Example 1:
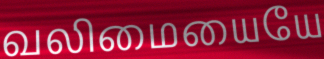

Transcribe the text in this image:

வலிமையையே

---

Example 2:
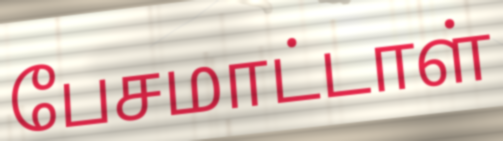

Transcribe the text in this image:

பேசமாட்டாள்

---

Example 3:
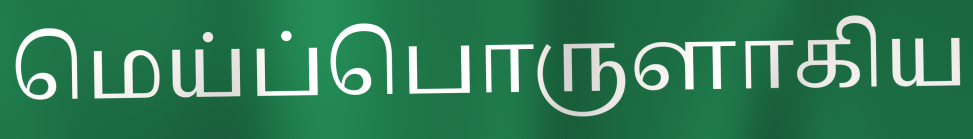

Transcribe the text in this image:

மெய்ப்பொருளாகிய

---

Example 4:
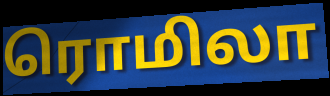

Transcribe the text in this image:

ரொமிலா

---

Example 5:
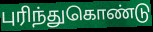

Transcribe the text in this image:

புரிந்துகொண்டு